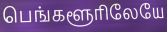
பெங்களூரிலேயே